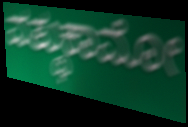
ವತ್ಥುಕಾಮೋ